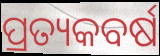
ପ୍ରତ୍ୟକବର୍ଷ